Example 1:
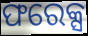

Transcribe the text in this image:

ଫରେକ୍ସ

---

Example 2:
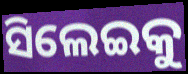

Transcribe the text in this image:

ସିଲେଇକୁ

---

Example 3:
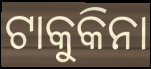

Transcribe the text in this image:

ଟାକୁକିନା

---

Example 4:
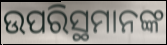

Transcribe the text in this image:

ଉପରିସ୍ଥମାନଙ୍କ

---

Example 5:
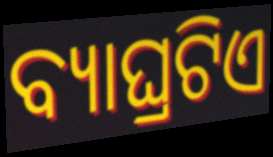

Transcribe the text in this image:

ବ୍ୟାଘ୍ରଟିଏ